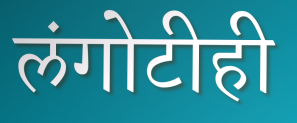
लंगोटीही